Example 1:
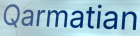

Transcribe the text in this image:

Qarmatian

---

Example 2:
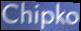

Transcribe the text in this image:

Chipko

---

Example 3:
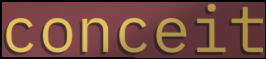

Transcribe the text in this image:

conceit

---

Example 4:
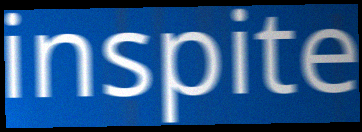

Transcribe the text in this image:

inspite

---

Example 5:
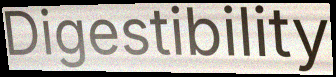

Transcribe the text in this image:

Digestibility